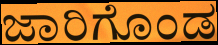
ಜಾರಿಗೊಂಡ